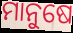
ମାନୁଷେ